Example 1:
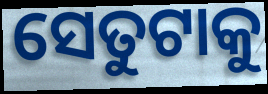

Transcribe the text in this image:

ସେତୁଟାକୁ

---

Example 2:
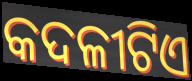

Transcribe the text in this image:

କଦଳୀଟିଏ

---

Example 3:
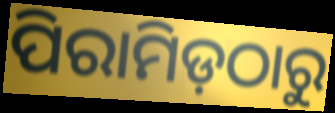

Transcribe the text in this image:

ପିରାମିଡ଼ଠାରୁ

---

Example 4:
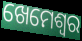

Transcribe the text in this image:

ଖେମେଶ୍ଵର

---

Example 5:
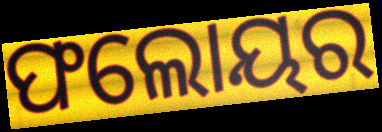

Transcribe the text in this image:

ଫଲୋୟର